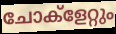
ചോക്ളേറ്റും